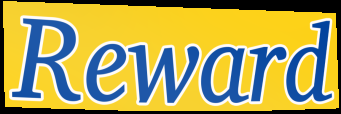
Reward